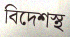
বিদেশস্থ